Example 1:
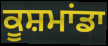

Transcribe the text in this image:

ਕੂਸ਼ਮਾਂਡਾ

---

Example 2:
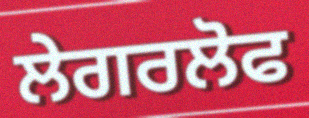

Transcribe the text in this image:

ਲੇਗਰਲੋਫ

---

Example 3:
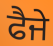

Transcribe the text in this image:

ਫੈਜੇ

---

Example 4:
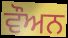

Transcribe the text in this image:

ਵੌਅਨ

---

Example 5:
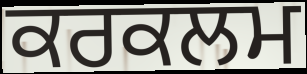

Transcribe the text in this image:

ਕਰਕਲਮ